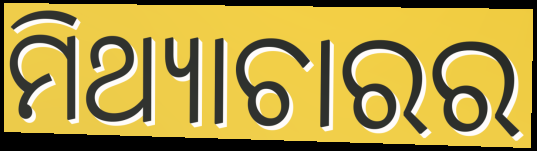
ମିଥ୍ୟାଚାରର